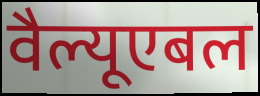
वैल्यूएबल